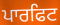
ਪਾਰਫਿਟ